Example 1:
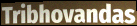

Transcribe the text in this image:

Tribhovandas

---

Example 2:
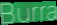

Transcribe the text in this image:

Burra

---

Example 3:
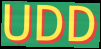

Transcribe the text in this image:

UDD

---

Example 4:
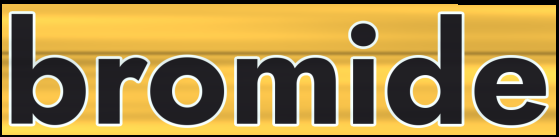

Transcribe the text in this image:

bromide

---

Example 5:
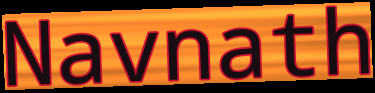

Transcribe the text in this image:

Navnath